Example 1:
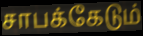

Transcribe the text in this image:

சாபக்கேடும்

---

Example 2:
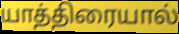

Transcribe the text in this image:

யாத்திரையால்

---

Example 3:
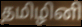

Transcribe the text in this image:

தமிழினி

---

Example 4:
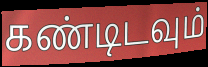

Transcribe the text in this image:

கண்டிடவும்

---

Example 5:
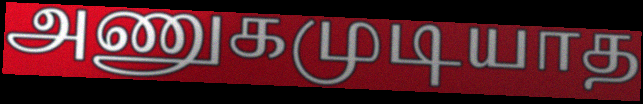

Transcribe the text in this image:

அணுகமுடியாத